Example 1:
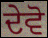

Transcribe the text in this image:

ਦੇਵੋ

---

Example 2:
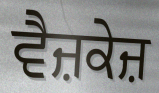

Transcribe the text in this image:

ਵੈਜ਼ਕੇਜ਼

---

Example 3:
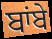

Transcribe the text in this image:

ਬਾਂਬੇ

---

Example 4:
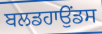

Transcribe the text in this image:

ਬਲਡਹਾਉਂਡਸ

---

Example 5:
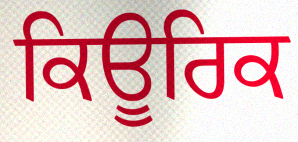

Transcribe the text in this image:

ਕਿਊਰਿਕ